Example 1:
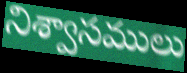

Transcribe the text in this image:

నిశ్వాసములు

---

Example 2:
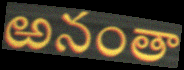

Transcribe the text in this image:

ఱనంతా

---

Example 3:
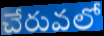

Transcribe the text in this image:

చేరువలో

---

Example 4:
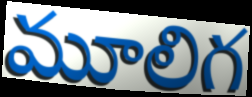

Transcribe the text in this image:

మూలిగ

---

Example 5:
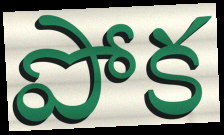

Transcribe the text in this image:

పోక